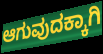
ಆಗುವುದಕ್ಕಾಗಿ